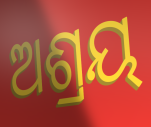
ଅଶ୍ରୟ